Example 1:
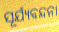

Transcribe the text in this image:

ସୂର୍ଯ୍ୟବନ୍ଦନା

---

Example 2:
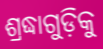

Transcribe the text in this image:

ଶ୍ରଦ୍ଧାଗୁଡ଼ିକୁ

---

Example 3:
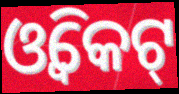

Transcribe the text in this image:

ଓ୍ଵିକେଟ୍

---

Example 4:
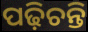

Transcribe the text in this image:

ପଢ଼ିଚନ୍ତି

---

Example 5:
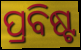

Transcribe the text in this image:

ପ୍ରବିଷ୍ଟ